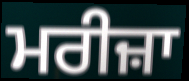
ਮਰੀਜ਼ਾ